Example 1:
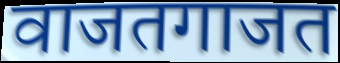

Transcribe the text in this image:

वाजतगाजत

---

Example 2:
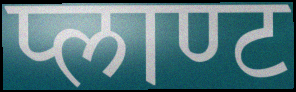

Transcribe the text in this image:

प्लाण्ट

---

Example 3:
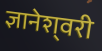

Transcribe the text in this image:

ज्ञानेश्वरी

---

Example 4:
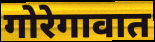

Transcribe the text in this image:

गोरेगावात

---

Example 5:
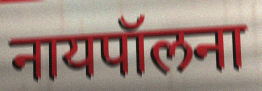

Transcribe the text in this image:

नायपॉलना